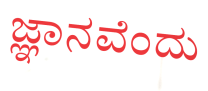
ಜ್ಞಾನವೆಂದು